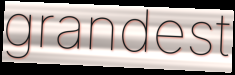
grandest